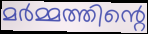
മർമ്മത്തിന്റെ